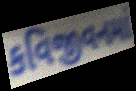
કવિજીવનમાં